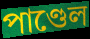
পাণ্ডেল